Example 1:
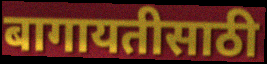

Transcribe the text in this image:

बागायतीसाठी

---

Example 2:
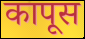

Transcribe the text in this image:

कापूस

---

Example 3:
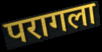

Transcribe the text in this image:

परागला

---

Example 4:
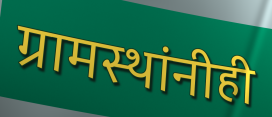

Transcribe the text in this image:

ग्रामस्थांनीही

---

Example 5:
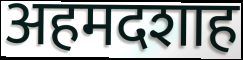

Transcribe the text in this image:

अहमदशाह